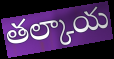
తల్కాయ